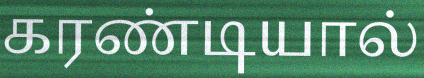
கரண்டியால்